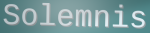
Solemnis